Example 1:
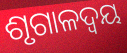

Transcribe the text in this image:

ଶୃଗାଳଦ୍ୱୟ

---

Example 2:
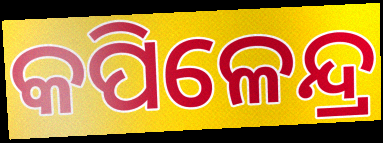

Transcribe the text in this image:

କପିଳେନ୍ଦ୍ର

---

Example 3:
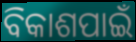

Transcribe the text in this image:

ବିକାଶପାଇଁ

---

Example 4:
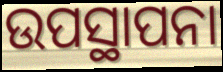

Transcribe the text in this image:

ଉପସ୍ଥାପନା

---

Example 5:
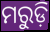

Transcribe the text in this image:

ମରୁଡ଼ି